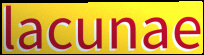
lacunae